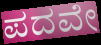
ಪದವೇ